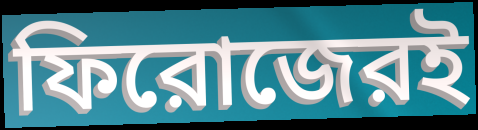
ফিরোজেরই